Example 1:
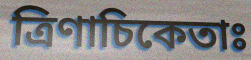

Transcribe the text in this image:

ত্রিণাচিকেতাঃ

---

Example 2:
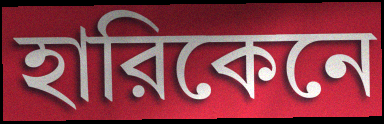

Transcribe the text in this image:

হারিকেনে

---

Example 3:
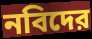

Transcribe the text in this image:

নবিদের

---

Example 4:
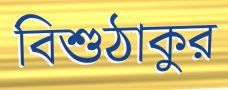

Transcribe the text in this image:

বিশুঠাকুর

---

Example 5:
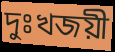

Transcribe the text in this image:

দুঃখজয়ী